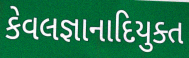
કેવલજ્ઞાનાદિયુક્ત